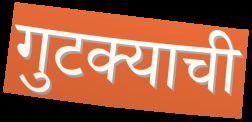
गुटक्याची